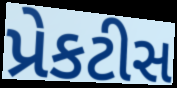
પ્રેકટીસ